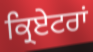
ਕ੍ਰਿਏਟਰਾਂ